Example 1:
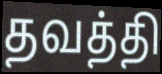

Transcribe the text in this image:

தவத்தி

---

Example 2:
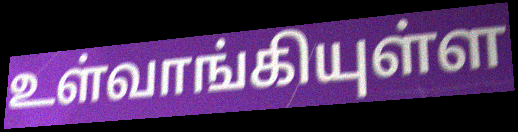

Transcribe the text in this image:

உள்வாங்கியுள்ள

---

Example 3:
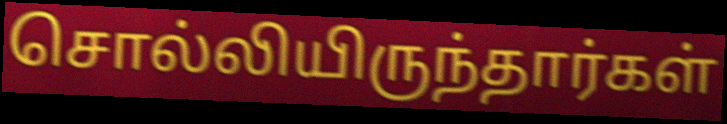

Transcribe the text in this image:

சொல்லியிருந்தார்கள்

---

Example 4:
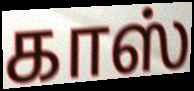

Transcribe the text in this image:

காஸ்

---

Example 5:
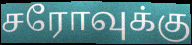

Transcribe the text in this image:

சரோவுக்கு